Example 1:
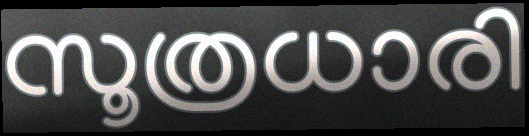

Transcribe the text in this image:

സൂത്രധാരി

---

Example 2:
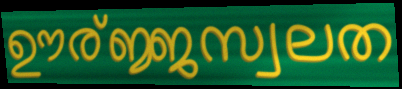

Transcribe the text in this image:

ഊര്ജ്ജസ്വലത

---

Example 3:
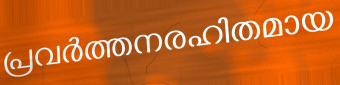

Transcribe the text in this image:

പ്രവർത്തനരഹിതമായ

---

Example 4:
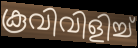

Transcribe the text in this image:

കൂവിവിളിച്ച്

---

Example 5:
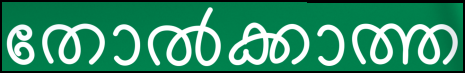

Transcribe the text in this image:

തോൽക്കാത്ത